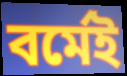
বর্মেই